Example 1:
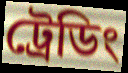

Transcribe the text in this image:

ট্রেডিং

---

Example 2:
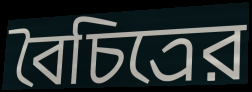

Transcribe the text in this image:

বৈচিত্রের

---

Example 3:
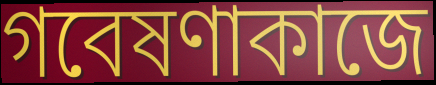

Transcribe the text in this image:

গবেষণাকাজে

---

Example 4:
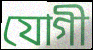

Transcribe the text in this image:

যোগী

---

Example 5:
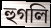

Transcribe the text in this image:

হুগলি